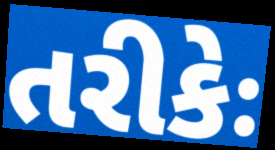
તરીકેઃ